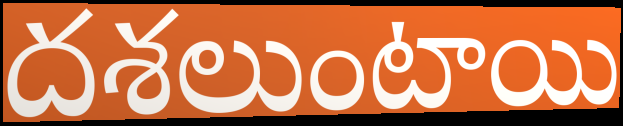
దశలుంటాయి